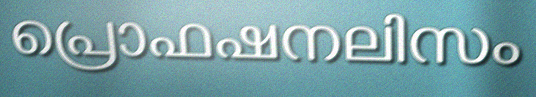
പ്രൊഫഷനലിസം